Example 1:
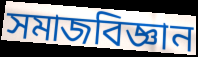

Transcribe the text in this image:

সমাজবিজ্ঞান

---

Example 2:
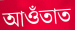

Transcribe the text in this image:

আওঁতাত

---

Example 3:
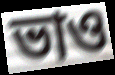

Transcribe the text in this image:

ভাও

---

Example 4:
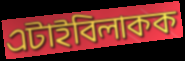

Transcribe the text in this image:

এটাইবিলাকক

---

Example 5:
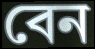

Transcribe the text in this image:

বেন